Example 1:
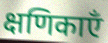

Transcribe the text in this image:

क्षणिकाएँ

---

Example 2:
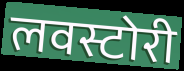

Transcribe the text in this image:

लवस्‍टोरी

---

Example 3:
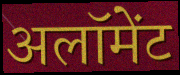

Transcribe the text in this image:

अलॉमेंट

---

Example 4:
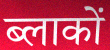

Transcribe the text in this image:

ब्लाकों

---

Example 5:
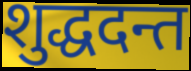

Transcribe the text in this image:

शुद्धदन्त